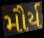
મૌર્ય